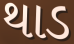
થાડ